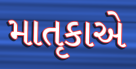
માતૃકાએ